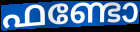
ഫണ്ടോ